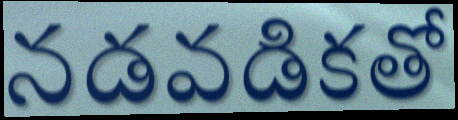
నడవడికతో